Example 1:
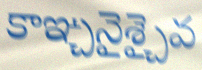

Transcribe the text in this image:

కాఞ్చనైశ్చైవ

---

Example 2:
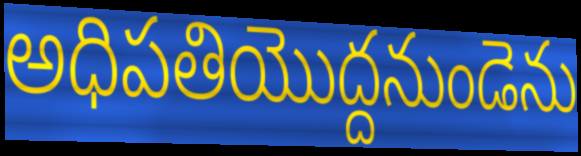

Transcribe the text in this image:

అధిపతియొద్దనుండెను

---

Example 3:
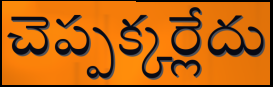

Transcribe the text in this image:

చెప్పక్కర్లేదు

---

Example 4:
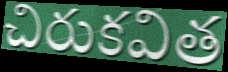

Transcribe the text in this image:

చిరుకవిత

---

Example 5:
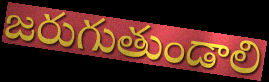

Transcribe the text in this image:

జరుగుతుండాలి